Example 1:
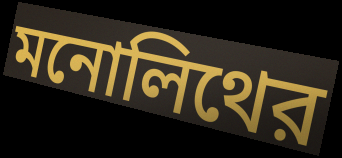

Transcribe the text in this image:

মনোলিথের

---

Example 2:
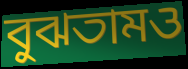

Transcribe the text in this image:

বুঝতামও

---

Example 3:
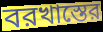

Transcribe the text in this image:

বরখাস্তের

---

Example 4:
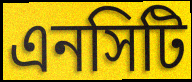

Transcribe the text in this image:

এনসিটি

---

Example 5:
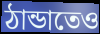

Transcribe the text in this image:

ঠান্ডাতেও